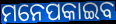
ମନେପକାଇବ